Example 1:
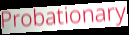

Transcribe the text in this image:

Probationary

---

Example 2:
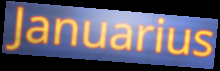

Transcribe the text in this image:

Januarius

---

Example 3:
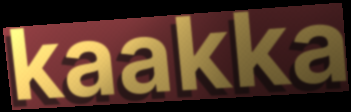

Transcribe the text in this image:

kaakka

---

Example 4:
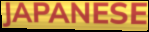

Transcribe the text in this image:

JAPANESE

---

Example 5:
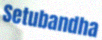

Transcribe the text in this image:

Setubandha